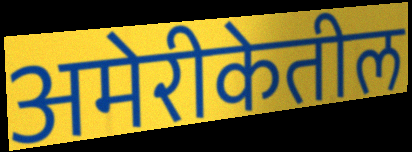
अमेरीकेतील